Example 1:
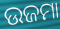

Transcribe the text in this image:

ଉଜମା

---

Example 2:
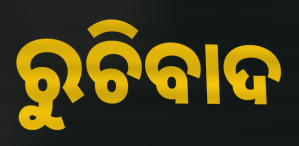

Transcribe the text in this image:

ରୁଚିବାଦ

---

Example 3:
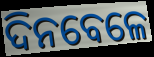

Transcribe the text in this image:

ଦିନବେଳେ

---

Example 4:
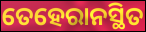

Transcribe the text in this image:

ତେହେରାନସ୍ଥିତ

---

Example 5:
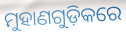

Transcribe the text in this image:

ମୁହାଣଗୁଡ଼ିକରେ